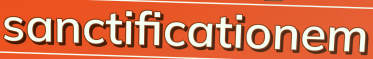
sanctificationem